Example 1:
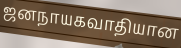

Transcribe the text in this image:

ஜனநாயகவாதியான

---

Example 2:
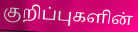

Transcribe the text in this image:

குறிப்புகளின்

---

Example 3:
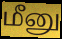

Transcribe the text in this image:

மீனு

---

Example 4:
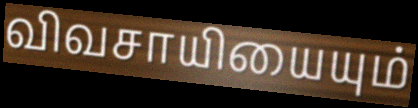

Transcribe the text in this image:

விவசாயியையும்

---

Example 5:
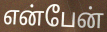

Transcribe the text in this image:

என்பேன்